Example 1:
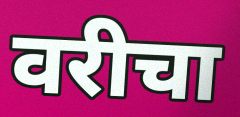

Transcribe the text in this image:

वरीचा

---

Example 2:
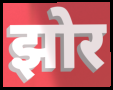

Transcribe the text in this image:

झोर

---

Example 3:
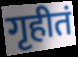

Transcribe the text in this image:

गृहीतं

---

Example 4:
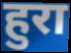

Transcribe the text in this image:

हुरा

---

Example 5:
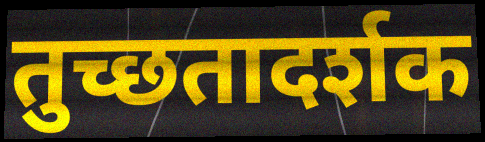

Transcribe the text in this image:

तुच्छतादर्शक